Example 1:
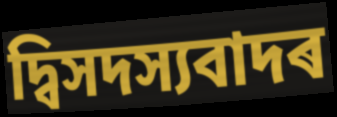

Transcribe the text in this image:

দ্বিসদস্যবাদৰ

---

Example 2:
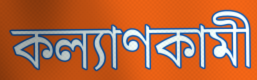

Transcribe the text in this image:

কল্যাণকামী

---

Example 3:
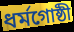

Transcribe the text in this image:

ধৰ্মগোষ্ঠী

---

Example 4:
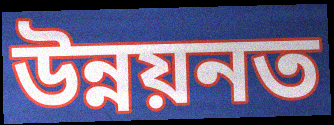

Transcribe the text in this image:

উন্নয়নত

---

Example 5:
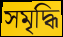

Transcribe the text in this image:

সমৃদ্ধি